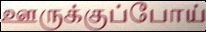
ஊருக்குப்போய்